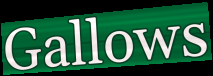
Gallows